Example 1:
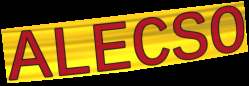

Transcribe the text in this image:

ALECSO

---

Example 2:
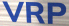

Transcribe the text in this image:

VRP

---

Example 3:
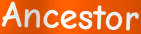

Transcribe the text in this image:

Ancestor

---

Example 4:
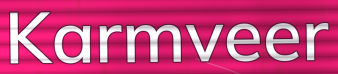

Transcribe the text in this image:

Karmveer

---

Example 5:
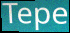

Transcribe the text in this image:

Tepe